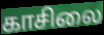
காசிலை